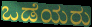
ಒಡೆಯರು